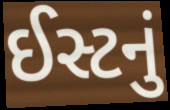
ઈસ્ટનું